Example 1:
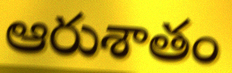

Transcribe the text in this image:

ఆరుశాతం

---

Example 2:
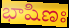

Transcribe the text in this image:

భాషిణః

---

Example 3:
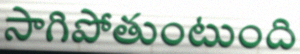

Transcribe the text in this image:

సాగిపోతుంటుంది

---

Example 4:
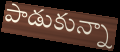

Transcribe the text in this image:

పాడుకున్నా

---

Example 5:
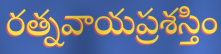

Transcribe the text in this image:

రత్నవాయప్రశస్తిం